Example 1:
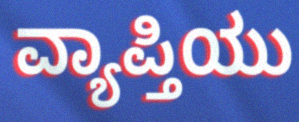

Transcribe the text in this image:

ವ್ಯಾಪ್ತಿಯು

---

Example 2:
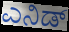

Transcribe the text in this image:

ಎನಿಡ್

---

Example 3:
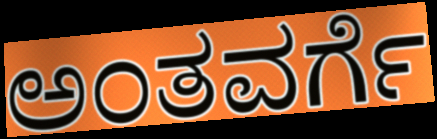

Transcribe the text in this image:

ಅಂತವರ್ಗೆ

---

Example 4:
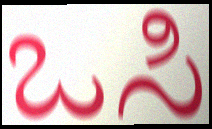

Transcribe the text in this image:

ಒಸಿ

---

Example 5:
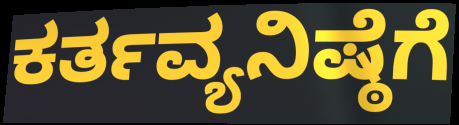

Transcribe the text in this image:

ಕರ್ತವ್ಯನಿಷ್ಠೆಗೆ